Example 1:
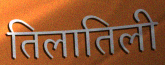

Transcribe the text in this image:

तिलातिली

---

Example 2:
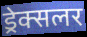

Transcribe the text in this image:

ड्रेक्सलर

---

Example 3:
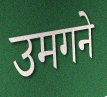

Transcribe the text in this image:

उमगने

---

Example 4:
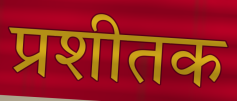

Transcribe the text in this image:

प्रशीतक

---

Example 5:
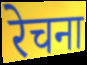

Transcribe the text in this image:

रेचना